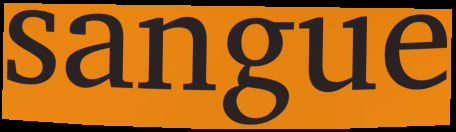
sangue